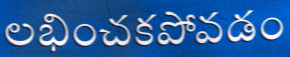
లభించకపోవడం